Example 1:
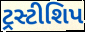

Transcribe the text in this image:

ટ્રસ્ટીશિપ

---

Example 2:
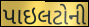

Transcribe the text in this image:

પાઇલટોની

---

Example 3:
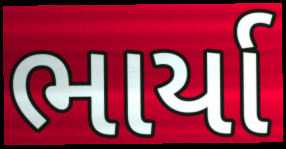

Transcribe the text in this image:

ભાર્યા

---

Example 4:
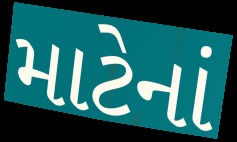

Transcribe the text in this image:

માટેનાં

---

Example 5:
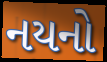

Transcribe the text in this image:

નયનો